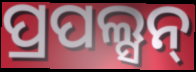
ପ୍ରପଲ୍ସନ୍